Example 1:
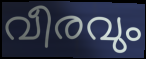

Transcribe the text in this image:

വീരവും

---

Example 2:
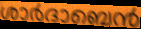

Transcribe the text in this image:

ശാർദാബെൻ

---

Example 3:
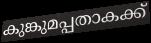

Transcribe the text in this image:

കുങ്കുമപ്പതാകക്ക്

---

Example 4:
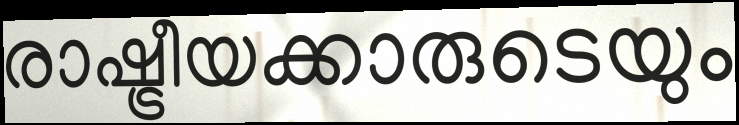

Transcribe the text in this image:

രാഷ്ട്രീയക്കാരുടെയും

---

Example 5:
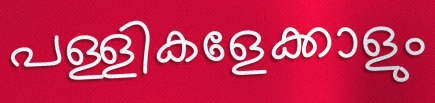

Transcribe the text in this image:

പള്ളികളേക്കാളും